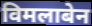
विमलाबेन